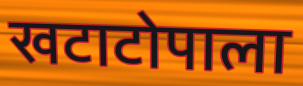
खटाटोपाला